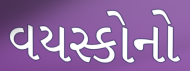
વયસ્કોનો